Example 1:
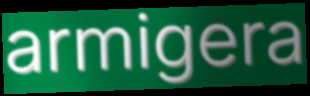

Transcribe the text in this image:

armigera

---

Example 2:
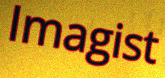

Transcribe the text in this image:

Imagist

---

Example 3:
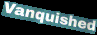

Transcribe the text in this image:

Vanquished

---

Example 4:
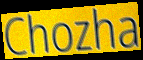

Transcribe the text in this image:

Chozha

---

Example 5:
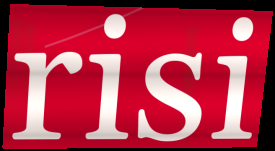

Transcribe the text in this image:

risi